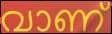
വാണ്